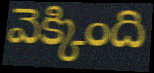
వెక్కింది